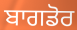
ਬਾਗਡੋਰ